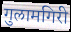
गुलामगिरी